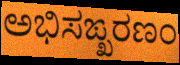
ಅಭಿಸಙ್ಖರಣಂ